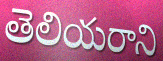
తెలియరాని